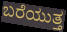
ಬರೆಯುತ್ತ